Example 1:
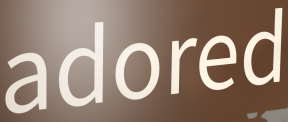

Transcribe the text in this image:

adored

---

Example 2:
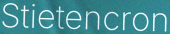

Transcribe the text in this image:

Stietencron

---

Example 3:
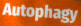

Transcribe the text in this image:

Autophagy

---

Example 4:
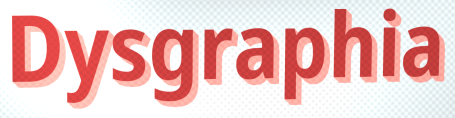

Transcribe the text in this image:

Dysgraphia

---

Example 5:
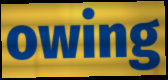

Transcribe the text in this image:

owing